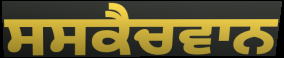
ਸਸਕੈਚਵਾਨ